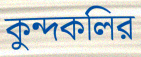
কুন্দকলির